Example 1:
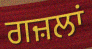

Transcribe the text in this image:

ਗਜ਼ਲਾਂ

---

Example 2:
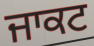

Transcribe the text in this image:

ਜਾਕਟ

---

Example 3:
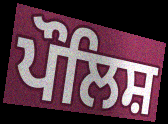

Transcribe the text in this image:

ਪੌਲਿਸ਼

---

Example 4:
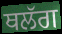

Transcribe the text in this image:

ਥਲੱਗ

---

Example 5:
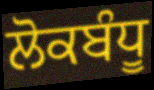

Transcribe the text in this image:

ਲੋਕਬੰਧੂ